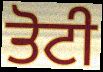
ਤੋਟੀ